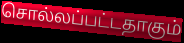
சொல்லப்பட்டதாகும்